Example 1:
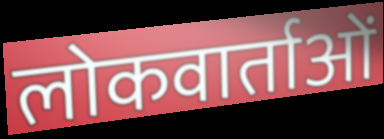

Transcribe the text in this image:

लोकवार्ताओं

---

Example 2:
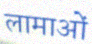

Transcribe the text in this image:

लामाओं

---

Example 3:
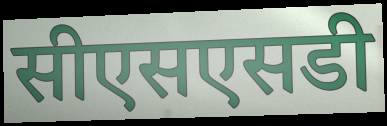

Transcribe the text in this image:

सीएसएसडी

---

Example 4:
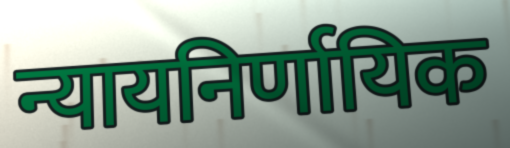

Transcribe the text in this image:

न्यायनिर्णायिक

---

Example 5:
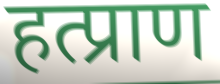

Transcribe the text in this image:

हत्प्राण